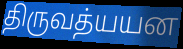
திருவத்யயன